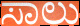
ಸಾಲು